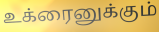
உக்ரைனுக்கும்